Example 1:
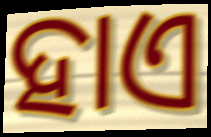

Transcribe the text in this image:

ହାଏ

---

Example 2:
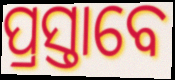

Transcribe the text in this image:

ପ୍ରସ୍ତାବେ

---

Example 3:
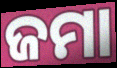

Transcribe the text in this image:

ଜମା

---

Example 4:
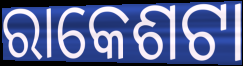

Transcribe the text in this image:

ରାକେଶଟା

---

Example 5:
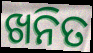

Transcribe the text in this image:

ଖନିତ